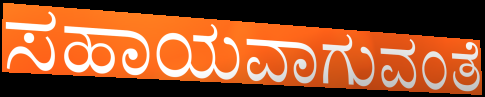
ಸಹಾಯವಾಗುವಂತೆ